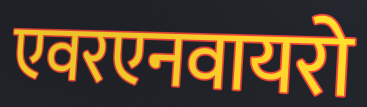
एवरएनवायरो